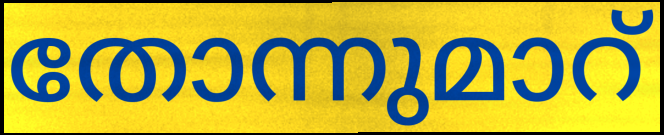
തോന്നുമാറ്